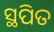
ସ୍ଥପିତ